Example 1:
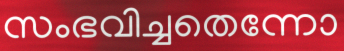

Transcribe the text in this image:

സംഭവിച്ചതെന്നോ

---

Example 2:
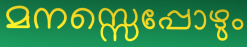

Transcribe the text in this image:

മനസ്സെപ്പോഴും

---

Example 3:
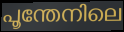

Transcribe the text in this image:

പൂന്തേനിലെ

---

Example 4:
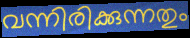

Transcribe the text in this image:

വന്നിരിക്കുന്നതും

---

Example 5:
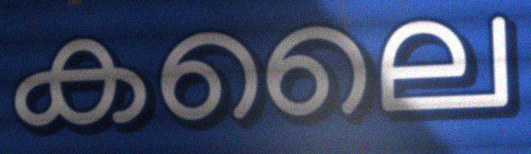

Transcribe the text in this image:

കലൈ